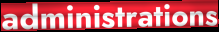
administrations